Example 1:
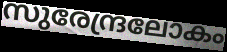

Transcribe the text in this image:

സുരേന്ദ്രലോകം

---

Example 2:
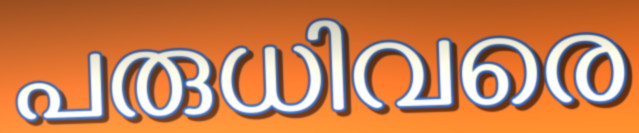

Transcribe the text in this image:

പരുധിവരെ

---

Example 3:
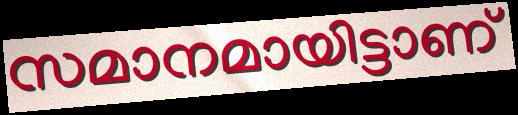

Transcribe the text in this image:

സമാനമായിട്ടാണ്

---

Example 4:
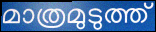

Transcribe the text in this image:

മാത്രമുടുത്ത്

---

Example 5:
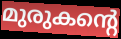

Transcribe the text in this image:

മുരുകന്റെ